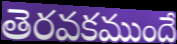
తెరవకముందే